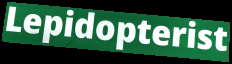
Lepidopterist